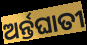
ଅର୍ନ୍ତଘାତୀ